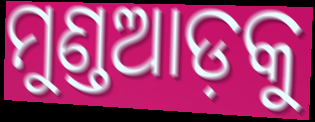
ମୁଣ୍ଡଆଡ଼କୁ